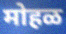
मोहळ